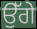
ਉੱਗੇ